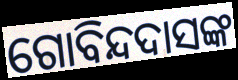
ଗୋବିନ୍ଦଦାସଙ୍କ